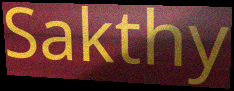
Sakthy